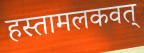
हस्तामलकवत्